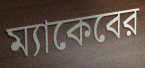
ম্যাকেবের